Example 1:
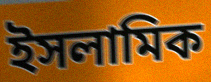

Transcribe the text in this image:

ইসলামিক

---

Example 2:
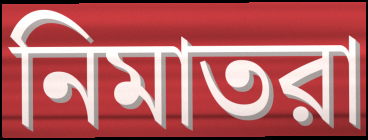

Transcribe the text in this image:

নিমাতরা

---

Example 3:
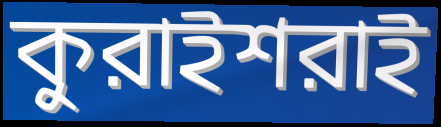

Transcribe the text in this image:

কুরাইশরাই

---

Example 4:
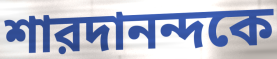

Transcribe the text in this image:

শারদানন্দকে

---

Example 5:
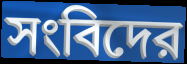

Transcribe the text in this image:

সংবিদের